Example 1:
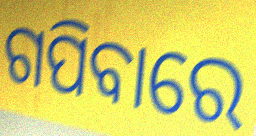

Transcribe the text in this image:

ଗପିବାରେ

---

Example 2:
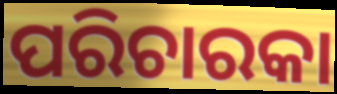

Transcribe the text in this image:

ପରିଚାରକା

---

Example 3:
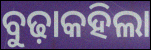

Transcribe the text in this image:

ବୁଢ଼ାକହିଲା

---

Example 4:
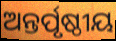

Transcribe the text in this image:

ଅନ୍ତର୍ପୃଷ୍ଠୀୟ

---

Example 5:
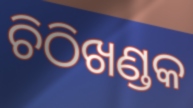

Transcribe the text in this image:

ଚିଠିଖଣ୍ଡକ